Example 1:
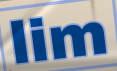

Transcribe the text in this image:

lim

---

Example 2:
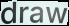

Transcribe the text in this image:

draw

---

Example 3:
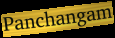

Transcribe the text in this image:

Panchangam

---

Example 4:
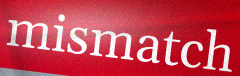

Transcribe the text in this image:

mismatch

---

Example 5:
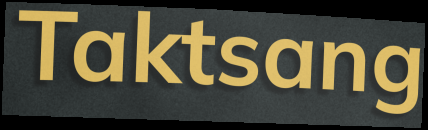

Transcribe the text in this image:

Taktsang